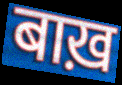
बाख़